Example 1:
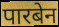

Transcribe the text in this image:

पारबेन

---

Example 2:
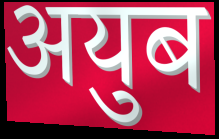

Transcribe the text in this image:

अयुब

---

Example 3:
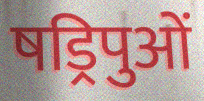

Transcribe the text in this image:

षड्रिपुओं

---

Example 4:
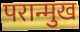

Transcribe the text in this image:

परान्मुख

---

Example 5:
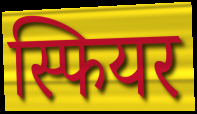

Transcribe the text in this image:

स्फियर